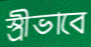
স্ত্রীভাবে